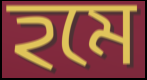
হমে